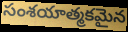
సంశయాత్మకమైన